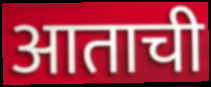
आताची